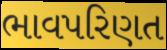
ભાવપરિણત